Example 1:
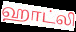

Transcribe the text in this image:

ஹாட்லி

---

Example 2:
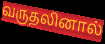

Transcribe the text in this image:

வருதலினால்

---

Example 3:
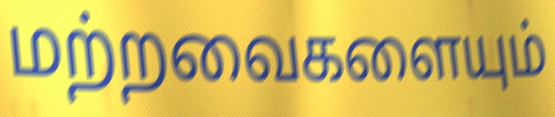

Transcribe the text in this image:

மற்றவைகளையும்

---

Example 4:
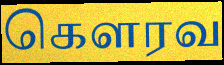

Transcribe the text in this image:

கெளரவ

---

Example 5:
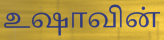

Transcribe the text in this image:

உஷாவின்